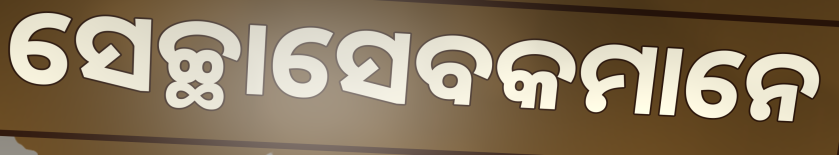
ସେଚ୍ଛାସେବକମାନେ